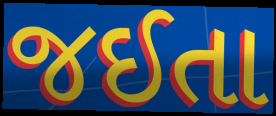
જઈતા